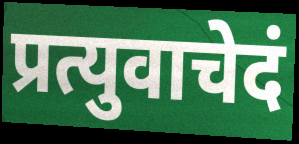
प्रत्युवाचेदं